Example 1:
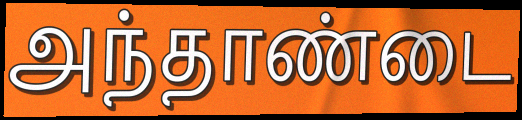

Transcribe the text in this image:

அந்தாண்டை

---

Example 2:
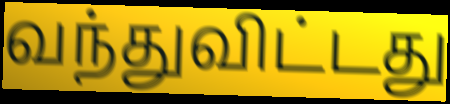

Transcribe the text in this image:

வந்துவிட்டது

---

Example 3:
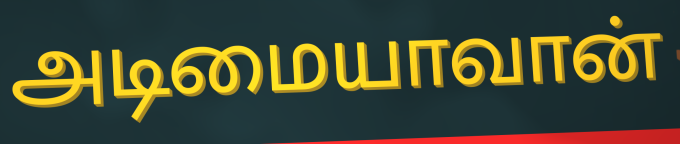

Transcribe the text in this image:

அடிமையாவான்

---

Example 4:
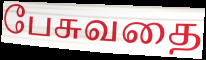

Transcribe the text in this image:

பேசுவதை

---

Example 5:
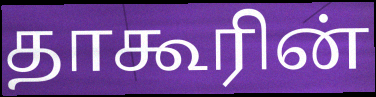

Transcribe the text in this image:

தாகூரின்